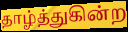
தாழ்த்துகின்ற